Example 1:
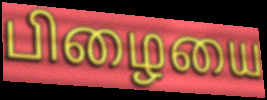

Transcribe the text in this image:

பிழையை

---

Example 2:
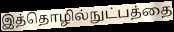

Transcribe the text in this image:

இத்தொழில்நுட்பத்தை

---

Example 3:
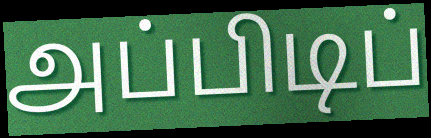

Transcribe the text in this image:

அப்பிடிப்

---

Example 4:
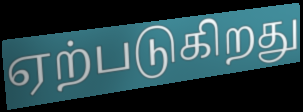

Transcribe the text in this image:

ஏற்படுகிறது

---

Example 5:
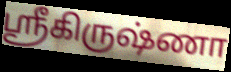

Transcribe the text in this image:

ஸ்ரீகிருஷ்ணா